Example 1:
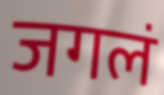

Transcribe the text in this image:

जगलं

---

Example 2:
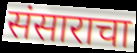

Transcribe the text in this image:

संसाराचा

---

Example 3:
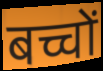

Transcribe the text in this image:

बच्चों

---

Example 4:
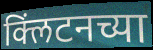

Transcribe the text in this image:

क्लिंटनच्या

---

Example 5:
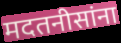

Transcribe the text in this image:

मदतनीसांना